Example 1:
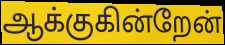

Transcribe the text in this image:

ஆக்குகின்றேன்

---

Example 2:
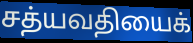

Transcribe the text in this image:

சத்யவதியைக்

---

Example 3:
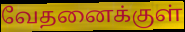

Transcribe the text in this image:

வேதனைக்குள்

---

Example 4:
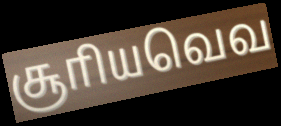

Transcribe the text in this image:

சூரியவெவ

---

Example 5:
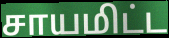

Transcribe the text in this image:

சாயமிட்ட